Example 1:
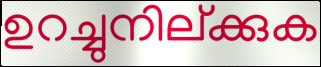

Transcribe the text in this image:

ഉറച്ചുനില്ക്കുക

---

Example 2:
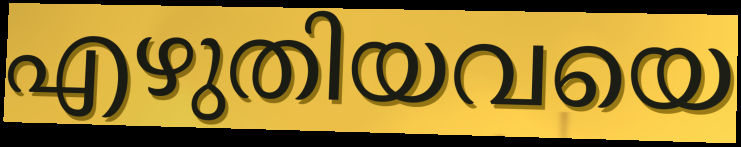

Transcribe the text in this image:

എഴുതിയവയെ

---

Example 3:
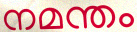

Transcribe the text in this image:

നമന്തം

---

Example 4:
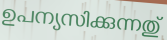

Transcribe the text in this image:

ഉപന്യസിക്കുന്നതു്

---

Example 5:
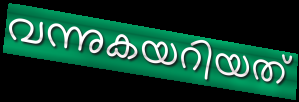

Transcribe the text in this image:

വന്നുകയറിയത്